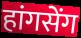
हांगसेंग